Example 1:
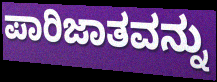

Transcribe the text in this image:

ಪಾರಿಜಾತವನ್ನು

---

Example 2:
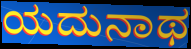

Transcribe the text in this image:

ಯದುನಾಥ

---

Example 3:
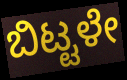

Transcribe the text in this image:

ಬಿಟ್ಟಳೇ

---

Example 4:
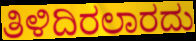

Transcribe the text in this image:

ತಿಳಿದಿರಲಾರದು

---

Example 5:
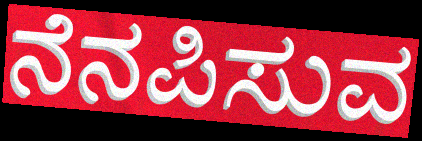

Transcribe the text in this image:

ನೆನಪಿಸುವ